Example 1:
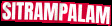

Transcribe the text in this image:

SITRAMPALAM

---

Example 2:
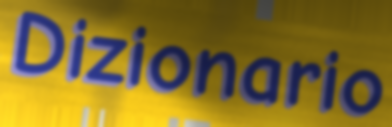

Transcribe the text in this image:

Dizionario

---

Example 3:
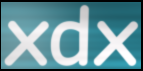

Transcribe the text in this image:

xdx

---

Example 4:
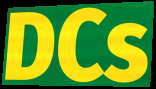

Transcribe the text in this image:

DCs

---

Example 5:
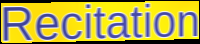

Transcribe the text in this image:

Recitation